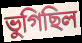
ভুগিছিল